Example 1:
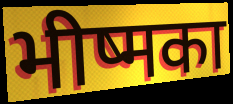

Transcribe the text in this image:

भीष्मका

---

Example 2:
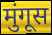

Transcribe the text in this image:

मुंगूस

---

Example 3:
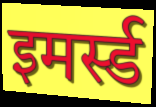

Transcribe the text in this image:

इमर्स्ड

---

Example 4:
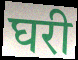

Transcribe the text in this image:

घरी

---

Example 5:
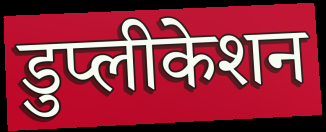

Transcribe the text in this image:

डुप्लीकेशन